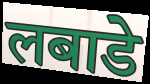
लबाडे